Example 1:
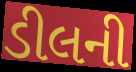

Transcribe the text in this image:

ડીલની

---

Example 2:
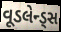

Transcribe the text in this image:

વૂડલેન્ડ્સ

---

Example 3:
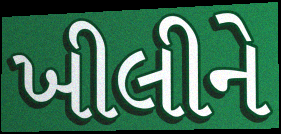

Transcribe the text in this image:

ખીલીને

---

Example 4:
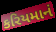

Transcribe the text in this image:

કરિયમાનં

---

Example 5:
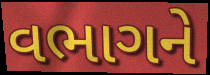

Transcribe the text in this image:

વભાગને